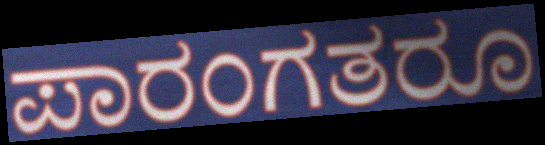
ಪಾರಂಗತರೂ